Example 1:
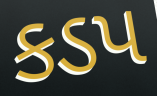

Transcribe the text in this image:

કડપ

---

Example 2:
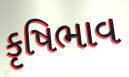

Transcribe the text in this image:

કૃષિભાવ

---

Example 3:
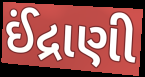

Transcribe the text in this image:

ઈંદ્રાણી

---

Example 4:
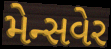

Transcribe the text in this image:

મેન્સવેર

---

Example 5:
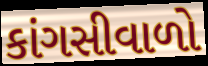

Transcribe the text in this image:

કાંગસીવાળો